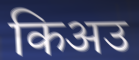
किअउ